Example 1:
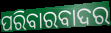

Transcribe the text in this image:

ପରିବାରବାଦର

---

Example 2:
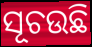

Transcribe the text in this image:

ସୂଚଉଛି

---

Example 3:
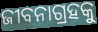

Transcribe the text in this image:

ଜୀବନାଗ୍ରହକୁ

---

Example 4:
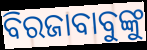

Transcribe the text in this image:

ବିରଜାବାବୁଙ୍କୁ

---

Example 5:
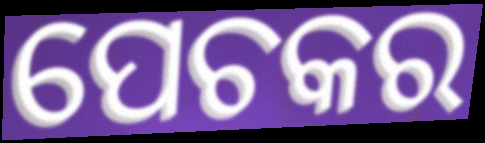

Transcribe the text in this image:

ପେଚକର